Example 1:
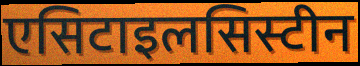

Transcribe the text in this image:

एसिटाइलसिस्टीन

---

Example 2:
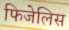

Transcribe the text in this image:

फिजेलिस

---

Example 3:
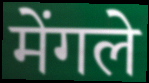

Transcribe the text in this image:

मेंगले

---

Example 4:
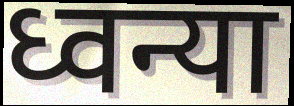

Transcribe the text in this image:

ध्वन्या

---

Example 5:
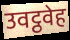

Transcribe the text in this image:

उवट्ठवेह